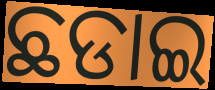
ଛଡାଇ